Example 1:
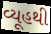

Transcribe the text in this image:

વ્યૂહથી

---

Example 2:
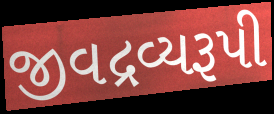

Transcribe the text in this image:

જીવદ્રવ્યરૂપી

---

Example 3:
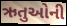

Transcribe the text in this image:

ઋતુઓની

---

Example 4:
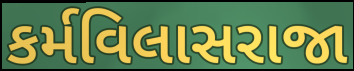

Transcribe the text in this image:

કર્મવિલાસરાજા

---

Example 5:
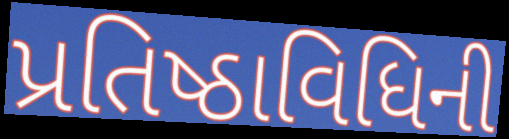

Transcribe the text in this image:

પ્રતિષ્ઠાવિધિની